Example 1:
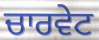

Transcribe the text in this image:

ਚਾਰਵੇਟ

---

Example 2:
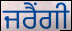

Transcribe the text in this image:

ਜਰੈਂਗੀ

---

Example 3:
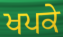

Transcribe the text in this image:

ਖਪਕੇ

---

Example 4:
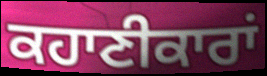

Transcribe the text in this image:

ਕਹਾਣੀਕਾਰਾਂ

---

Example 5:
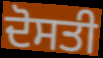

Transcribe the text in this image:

ਦੋਸਤੀ